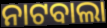
ନାଟବାଲା